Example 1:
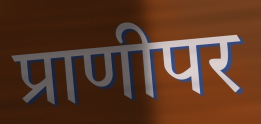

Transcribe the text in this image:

प्राणीपर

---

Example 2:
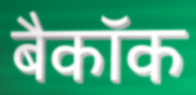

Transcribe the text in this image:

बैकॉक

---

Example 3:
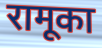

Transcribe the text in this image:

रामूका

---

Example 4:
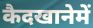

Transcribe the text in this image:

कैदखानेमें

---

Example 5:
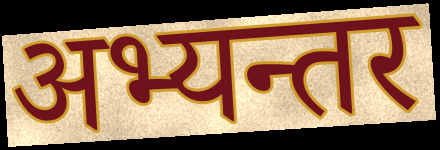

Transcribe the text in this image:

अभ्यन्तर